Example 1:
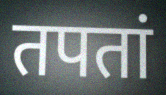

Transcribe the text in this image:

तपतां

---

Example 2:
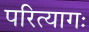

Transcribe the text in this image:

परित्यागः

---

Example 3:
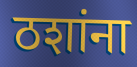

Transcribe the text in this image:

ठशांना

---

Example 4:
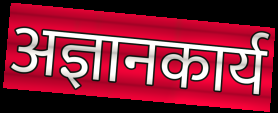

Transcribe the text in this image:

अज्ञानकार्य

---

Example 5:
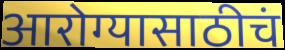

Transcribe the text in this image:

आरोग्यासाठीचं